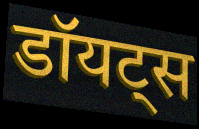
डॉयट्स